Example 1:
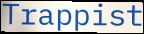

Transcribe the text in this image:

Trappist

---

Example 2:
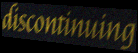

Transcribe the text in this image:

discontinuing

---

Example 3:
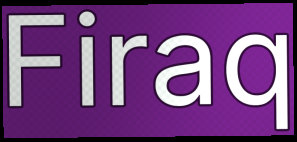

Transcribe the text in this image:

Firaq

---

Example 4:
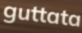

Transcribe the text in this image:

guttata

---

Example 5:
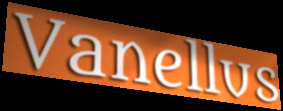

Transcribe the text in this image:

Vanellus